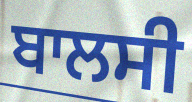
ਬਾਲਸੀ